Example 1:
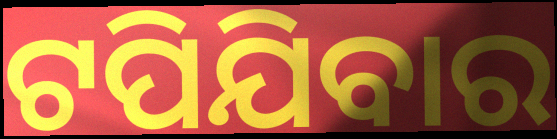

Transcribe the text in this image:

ଟପିଯିବାର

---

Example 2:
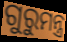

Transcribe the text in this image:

ଗୁରୁମନ୍ତ୍ର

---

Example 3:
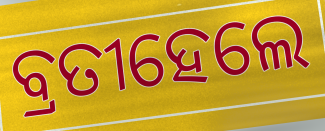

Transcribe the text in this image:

ବ୍ରତୀହେଲେ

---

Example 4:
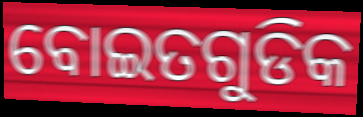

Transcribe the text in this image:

ବୋଇତଗୁଡିକ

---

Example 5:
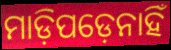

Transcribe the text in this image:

ମାଡ଼ିପଡ଼େନାହିଁ